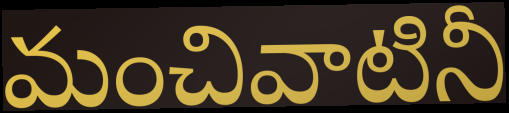
మంచివాటినీ